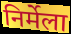
निर्मेला